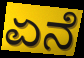
ಏನೆ